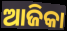
ଆଜିକା